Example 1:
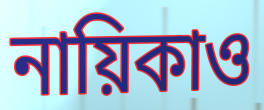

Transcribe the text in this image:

নায়িকাও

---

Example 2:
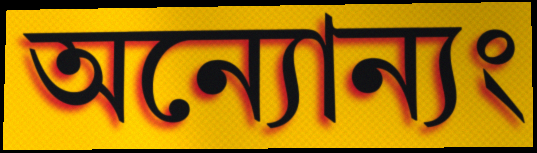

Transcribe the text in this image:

অন্যোন্যং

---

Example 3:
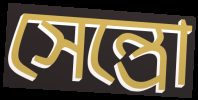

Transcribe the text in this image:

সেন্ত্রো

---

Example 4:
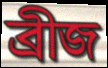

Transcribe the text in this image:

ব্রীজ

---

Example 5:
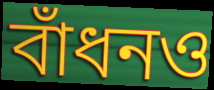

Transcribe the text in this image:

বাঁধনও